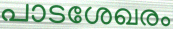
പാടശേഖരം